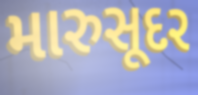
મારુસૂદર